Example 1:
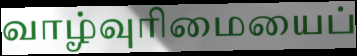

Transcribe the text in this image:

வாழ்வுரிமையைப்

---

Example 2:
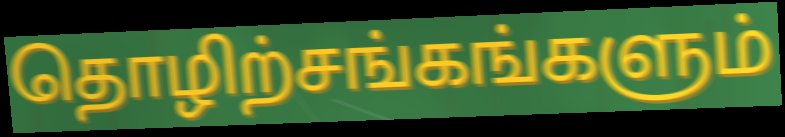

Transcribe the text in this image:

தொழிற்சங்கங்களும்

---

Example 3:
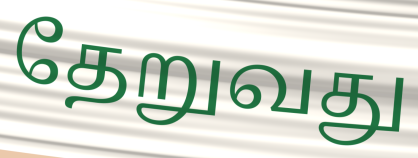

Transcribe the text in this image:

தேறுவது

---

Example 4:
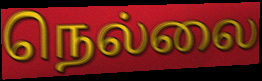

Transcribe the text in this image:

நெல்லை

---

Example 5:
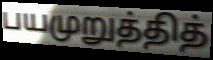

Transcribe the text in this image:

பயமுறுத்தித்